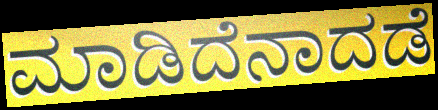
ಮಾಡಿದೆನಾದಡೆ